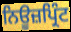
ਨਿਊਜ਼ਪ੍ਰਿੰਟ